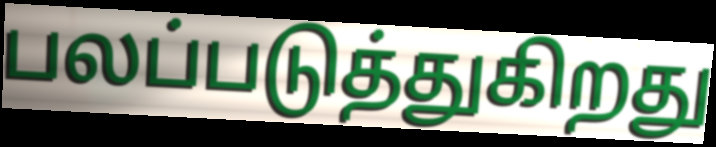
பலப்படுத்துகிறது